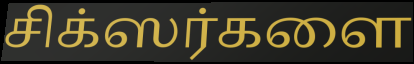
சிக்ஸர்களை